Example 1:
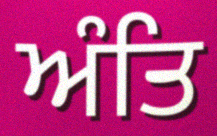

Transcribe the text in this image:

ਅੰਤਿ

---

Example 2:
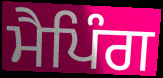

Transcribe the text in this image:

ਮੈਪਿੰਗ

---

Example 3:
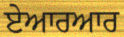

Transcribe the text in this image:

ਏਆਰਆਰ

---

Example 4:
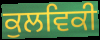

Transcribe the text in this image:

ਕੁਲਵਿਕੀ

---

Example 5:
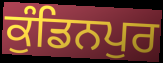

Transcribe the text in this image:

ਕੁੰਡਿਨਪੁਰ